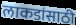
लाकडांसाठी